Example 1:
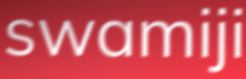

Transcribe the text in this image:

swamiji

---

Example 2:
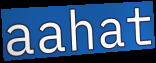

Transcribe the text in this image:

aahat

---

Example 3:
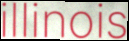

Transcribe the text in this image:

illinois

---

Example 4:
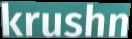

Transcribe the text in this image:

krushn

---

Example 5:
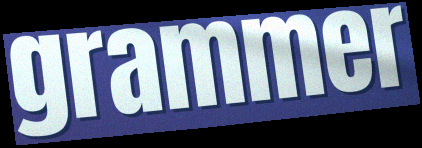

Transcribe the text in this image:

grammer